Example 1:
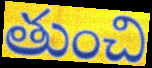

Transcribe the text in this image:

తుంచి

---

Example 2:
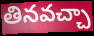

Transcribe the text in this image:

తినవచ్చా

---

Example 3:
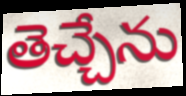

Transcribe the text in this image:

తెచ్చేను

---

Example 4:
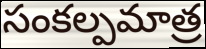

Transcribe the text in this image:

సంకల్పమాత్ర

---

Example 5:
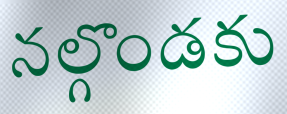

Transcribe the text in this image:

నల్గొండకు